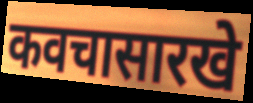
कवचासारखे